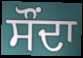
ਸੌਂਦਾ